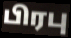
பிரபு